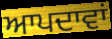
ਆਪਦਾਵਾਂ